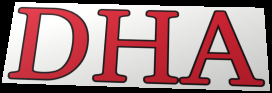
DHA